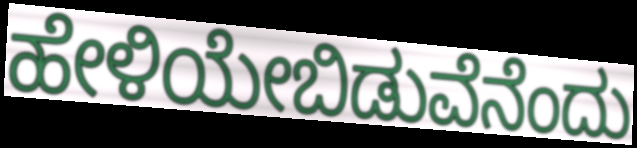
ಹೇಳಿಯೇಬಿಡುವೆನೆಂದು